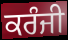
ਕਰੰਜੀ